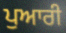
ਪੁਆਰੀ